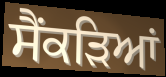
ਸੈਂਕੜਿਆਂ